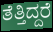
ತೆತ್ತಿದ್ದರೆ